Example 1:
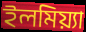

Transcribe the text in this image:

ইলমিয়্যা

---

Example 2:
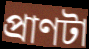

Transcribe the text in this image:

প্রাণটা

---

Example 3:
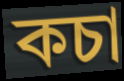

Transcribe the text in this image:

কচা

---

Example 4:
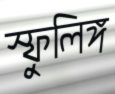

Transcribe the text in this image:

স্ফুলিঙ্গ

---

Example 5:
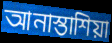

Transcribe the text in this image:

আনাস্তাশিয়া